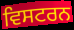
ਵਿਸਟਰਨ